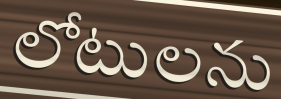
లోటులను